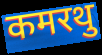
कमरथु